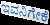
ಇವನಿಗೇಕೆ